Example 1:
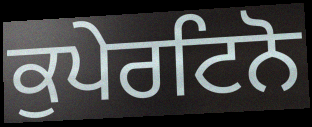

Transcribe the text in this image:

ਕੁਪੇਰਟਿਨੋ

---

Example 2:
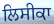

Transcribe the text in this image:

ਲਿਸੀਕਾ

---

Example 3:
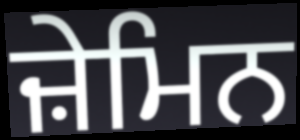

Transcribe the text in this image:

ਜ਼ੇਮਿਨ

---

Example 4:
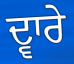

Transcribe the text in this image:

ਦ੍ਵਾਰੇ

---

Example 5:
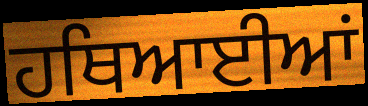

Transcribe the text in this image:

ਹਥਿਆਈਆਂ